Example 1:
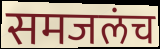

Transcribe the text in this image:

समजलंच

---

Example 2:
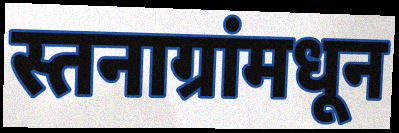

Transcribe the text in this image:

स्तनाग्रांमधून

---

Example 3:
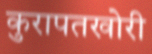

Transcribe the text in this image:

कुरापतखोरी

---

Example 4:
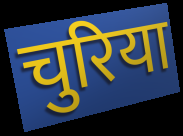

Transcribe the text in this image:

चुरिया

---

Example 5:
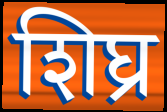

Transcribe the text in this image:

शिघ्र